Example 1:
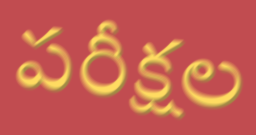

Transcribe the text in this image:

పరీక్షల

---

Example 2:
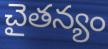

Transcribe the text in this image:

చైతన్యం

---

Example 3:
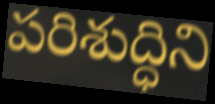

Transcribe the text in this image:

పరిశుద్ధిని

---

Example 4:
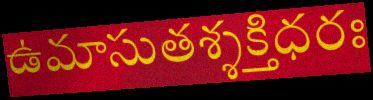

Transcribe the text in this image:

ఉమాసుతశ్శక్తిధరః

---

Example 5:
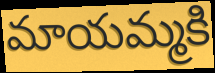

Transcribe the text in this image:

మాయమ్మకి